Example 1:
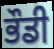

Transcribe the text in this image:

ਭੌਡੀ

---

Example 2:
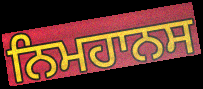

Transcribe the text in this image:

ਨਿਮਹਾਨਸ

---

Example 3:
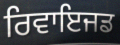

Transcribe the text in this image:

ਰਿਵਾਇਜਡ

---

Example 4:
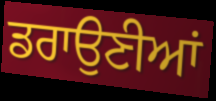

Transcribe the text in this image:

ਡਰਾਉਣੀਆਂ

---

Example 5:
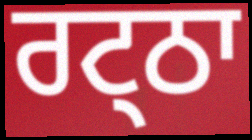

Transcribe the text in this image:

ਰਟ੍ਠਾ